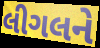
લીગલને